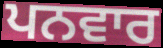
ਪਨਵਾਰ